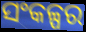
ସଂକଳ୍ପର